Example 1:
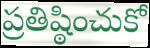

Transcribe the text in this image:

ప్రతిష్ఠించుకో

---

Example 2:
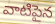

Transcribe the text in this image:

వాటిపైన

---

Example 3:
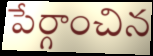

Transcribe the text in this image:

పేర్గాంచిన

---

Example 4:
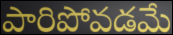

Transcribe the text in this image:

పారిపోవడమే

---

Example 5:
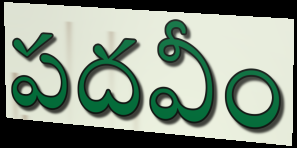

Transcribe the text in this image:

పదవీం